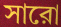
সারো